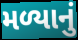
મળ્યાનું